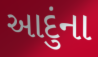
આદુંના